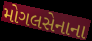
મોગલસેનાના